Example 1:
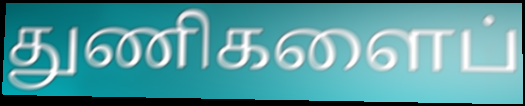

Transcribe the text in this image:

துணிகளைப்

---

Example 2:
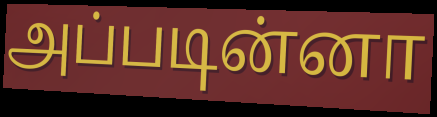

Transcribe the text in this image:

அப்படின்னா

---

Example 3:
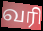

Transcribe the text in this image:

வரி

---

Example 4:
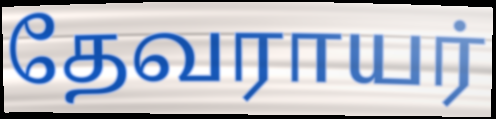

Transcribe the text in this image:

தேவராயர்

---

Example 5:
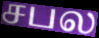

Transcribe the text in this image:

சபல